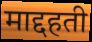
माद्दहती